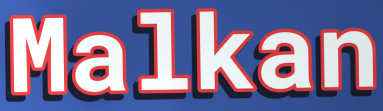
Malkan